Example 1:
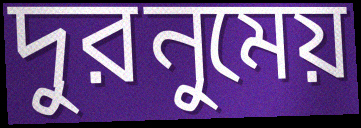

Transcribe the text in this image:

দুরনুমেয়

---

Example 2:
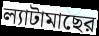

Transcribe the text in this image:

ল্যাটামাছের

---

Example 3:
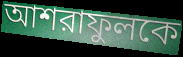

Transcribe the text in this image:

আশরাফুলকে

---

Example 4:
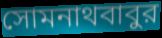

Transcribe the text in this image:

সোমনাথবাবুর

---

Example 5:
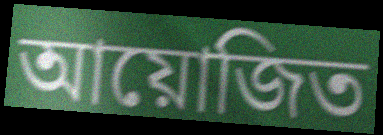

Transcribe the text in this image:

আয়োজিত